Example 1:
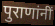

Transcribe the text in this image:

पुराणांनीं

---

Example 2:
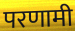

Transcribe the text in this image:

परणामी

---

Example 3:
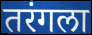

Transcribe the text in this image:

तरंगला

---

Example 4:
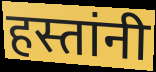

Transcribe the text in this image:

हस्तांनी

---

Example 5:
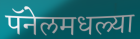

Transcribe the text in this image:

पॅनेलमधल्या